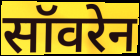
सॉवरेन